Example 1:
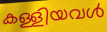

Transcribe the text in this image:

കള്ളിയവൾ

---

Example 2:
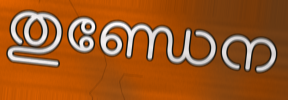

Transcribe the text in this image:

തുണ്ഡേന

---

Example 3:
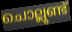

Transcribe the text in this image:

ചൊല്ലുണ്ട്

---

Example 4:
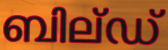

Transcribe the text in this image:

ബില്ഡ്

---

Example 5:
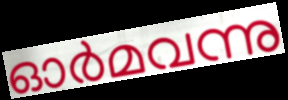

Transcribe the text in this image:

ഓർമവന്നു